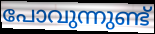
പോവുന്നുണ്ട്